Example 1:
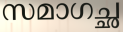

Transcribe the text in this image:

സമാഗച്ഛ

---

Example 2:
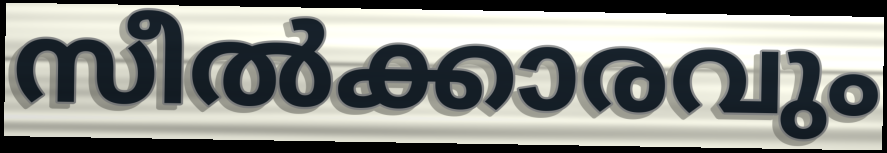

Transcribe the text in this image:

സീൽക്കാരവും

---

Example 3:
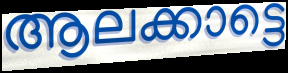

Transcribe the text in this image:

ആലക്കാട്ടെ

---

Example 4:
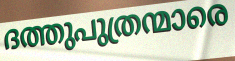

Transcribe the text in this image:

ദത്തുപുത്രന്മാരെ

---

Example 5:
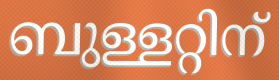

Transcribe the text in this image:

ബുള്ളറ്റിന്